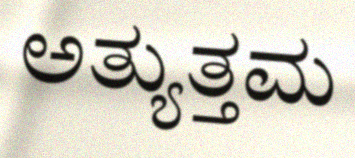
ಅತ್ಯುತ್ತಮ